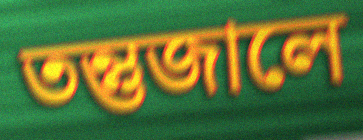
তন্তুজালে